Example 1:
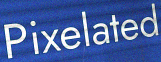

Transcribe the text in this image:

Pixelated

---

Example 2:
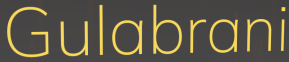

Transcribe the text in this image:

Gulabrani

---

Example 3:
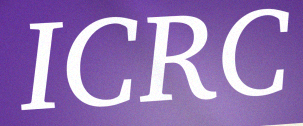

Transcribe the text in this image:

ICRC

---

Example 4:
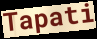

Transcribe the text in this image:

Tapati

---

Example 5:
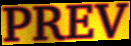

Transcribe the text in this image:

PREV